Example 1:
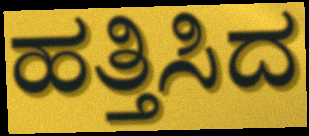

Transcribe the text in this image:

ಹತ್ತಿಸಿದ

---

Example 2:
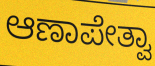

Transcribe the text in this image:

ಆಣಾಪೇತ್ವಾ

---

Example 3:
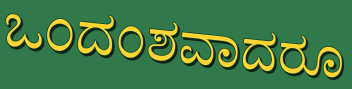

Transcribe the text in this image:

ಒಂದಂಶವಾದರೂ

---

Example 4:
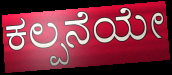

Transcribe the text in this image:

ಕಲ್ಪನೆಯೇ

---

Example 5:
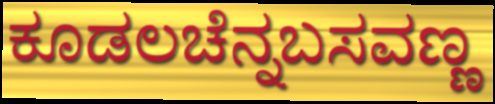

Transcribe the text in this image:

ಕೂಡಲಚೆನ್ನಬಸವಣ್ಣ